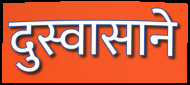
दुस्वासाने